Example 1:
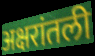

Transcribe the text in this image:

अक्षरांतली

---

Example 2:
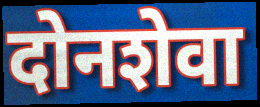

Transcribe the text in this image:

दोनशेवा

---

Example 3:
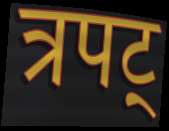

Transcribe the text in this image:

त्रपट्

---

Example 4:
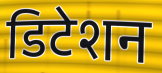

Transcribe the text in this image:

डिटेशन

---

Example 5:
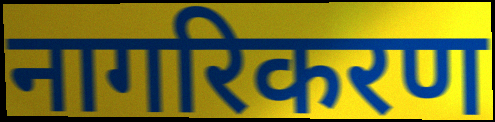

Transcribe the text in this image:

नागरिकरण